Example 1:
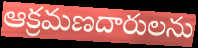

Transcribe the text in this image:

ఆక్రమణదారులను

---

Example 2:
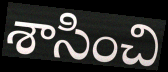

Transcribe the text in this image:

శాసించి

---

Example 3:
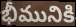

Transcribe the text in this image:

భీమునికి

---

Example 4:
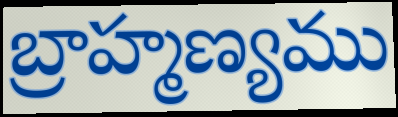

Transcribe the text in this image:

బ్రాహ్మణ్యము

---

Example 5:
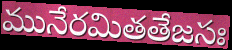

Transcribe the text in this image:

మునేరమితతేజసః